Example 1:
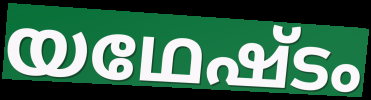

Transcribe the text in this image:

യഥേഷ്ടം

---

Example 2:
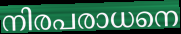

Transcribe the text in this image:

നിരപരാധനെ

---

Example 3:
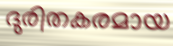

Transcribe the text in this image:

ദുരിതകരമായ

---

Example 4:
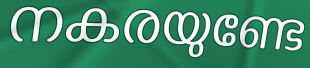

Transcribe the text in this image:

നകരയുണ്ടേ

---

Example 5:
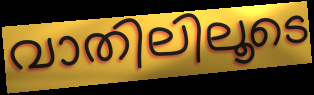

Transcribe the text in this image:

വാതിലിലൂടെ